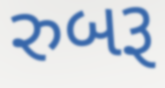
રુબરૂ